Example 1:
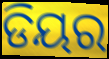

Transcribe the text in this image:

ଡିୟର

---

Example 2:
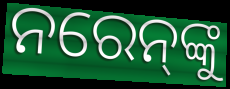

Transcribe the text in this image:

ନରେନ୍‍ଙ୍କୁ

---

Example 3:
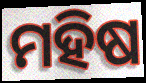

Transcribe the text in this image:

ମହିଷ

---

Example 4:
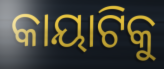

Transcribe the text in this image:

କାୟାଟିକୁ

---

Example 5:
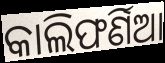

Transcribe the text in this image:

କାଲିଫର୍ଣିଆ